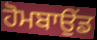
ਹੋਮਬਾਉਂਡ